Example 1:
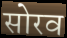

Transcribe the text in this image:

सोरव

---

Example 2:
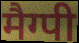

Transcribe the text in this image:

मैग्पी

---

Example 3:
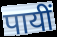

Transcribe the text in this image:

पायीं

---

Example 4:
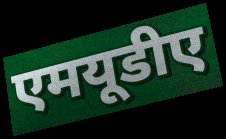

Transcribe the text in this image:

एमयूडीए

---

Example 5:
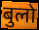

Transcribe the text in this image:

बुलो